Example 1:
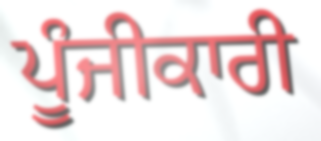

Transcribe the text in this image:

ਪੂੰਜੀਕਾਰੀ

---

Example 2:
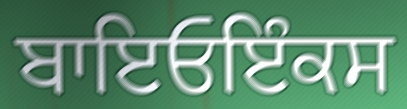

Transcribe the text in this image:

ਬਾਇਓਇੰਕਸ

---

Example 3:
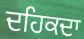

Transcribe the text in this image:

ਦਹਿਕਦਾ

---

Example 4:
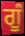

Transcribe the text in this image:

ਗੂੰ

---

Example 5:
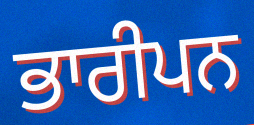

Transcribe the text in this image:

ਭਾਰੀਪਨ